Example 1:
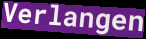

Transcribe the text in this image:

Verlangen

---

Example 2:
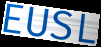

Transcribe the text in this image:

EUSL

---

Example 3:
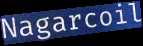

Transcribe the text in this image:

Nagarcoil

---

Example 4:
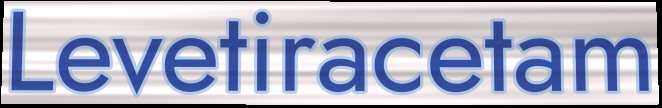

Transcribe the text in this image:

Levetiracetam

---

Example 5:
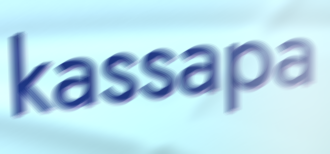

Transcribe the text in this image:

kassapa